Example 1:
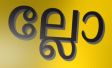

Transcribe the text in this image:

ല്ലോ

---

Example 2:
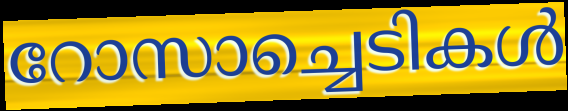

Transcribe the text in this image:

റോസാച്ചെടികൾ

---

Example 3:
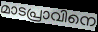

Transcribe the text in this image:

മാടപ്രാവിനെ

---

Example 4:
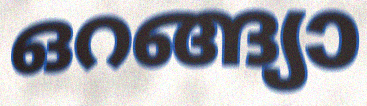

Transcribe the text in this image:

ഒറങ്ങ്യാ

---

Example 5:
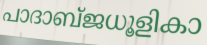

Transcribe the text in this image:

പാദാബ്ജധൂളികാ